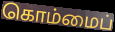
கொம்மைப்